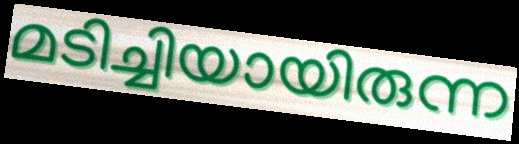
മടിച്ചിയായിരുന്ന